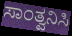
ಸಾಂತ್ವನಿಸಿ